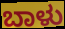
ಬಾಳು